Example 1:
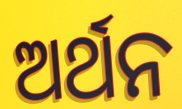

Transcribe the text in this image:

ଅର୍ଥନ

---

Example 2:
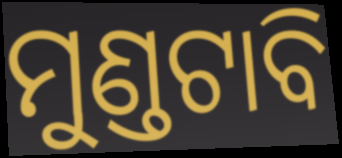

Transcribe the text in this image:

ମୁଣ୍ଡଟାବି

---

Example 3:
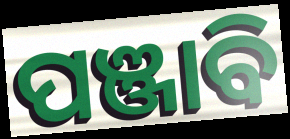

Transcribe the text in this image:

ପଞ୍ଜାବି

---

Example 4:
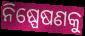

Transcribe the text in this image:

ନିଷ୍ପେଷଣକୁ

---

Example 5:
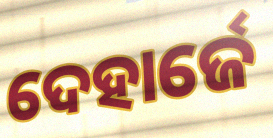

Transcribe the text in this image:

ଦେହାର୍ଜେ